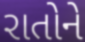
રાતોને